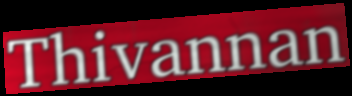
Thivannan